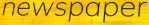
newspaper